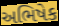
અભિષેક